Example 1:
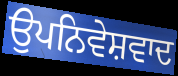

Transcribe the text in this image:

ਉਪਨਿਵੇਸ਼ਵਾਦ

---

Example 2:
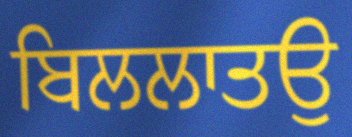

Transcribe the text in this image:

ਬਿਲਲਾਤਉ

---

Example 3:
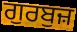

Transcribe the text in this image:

ਗੁਰਬੁਜ਼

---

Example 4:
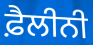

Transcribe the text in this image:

ਫ਼ੈਲੀਨੀ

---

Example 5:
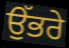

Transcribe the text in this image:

ਉੱਭਰੇ